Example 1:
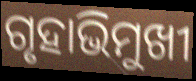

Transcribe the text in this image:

ଗୃହାଭିମୁଖୀ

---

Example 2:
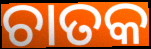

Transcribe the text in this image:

ଚାତକ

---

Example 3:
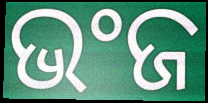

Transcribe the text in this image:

ଭଂଜ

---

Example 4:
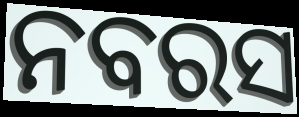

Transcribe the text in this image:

ନବରସ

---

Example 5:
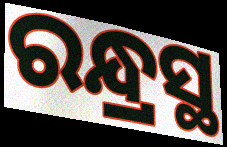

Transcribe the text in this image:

ରନ୍ଧ୍ରସ୍ଥ